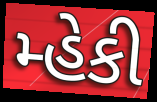
મ્હેકી